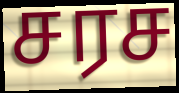
சரச